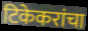
टिकेकरांचा